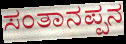
ಸಂತಾನಪ್ಪನ